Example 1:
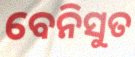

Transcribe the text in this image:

ବେନିସୁତ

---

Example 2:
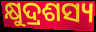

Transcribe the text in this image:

କ୍ଷୁଦ୍ରଶସ୍ୟ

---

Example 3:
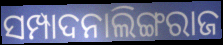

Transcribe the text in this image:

ସମ୍ପାଦନାଲିଙ୍ଗରାଜ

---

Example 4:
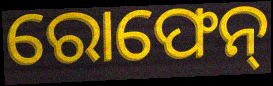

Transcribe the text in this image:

ରୋଫେନ୍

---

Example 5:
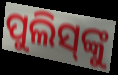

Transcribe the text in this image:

ପୁଲିସ୍‌ଙ୍କୁ